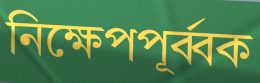
নিক্ষেপপূর্ব্বক